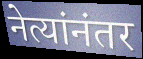
नेत्यांनंतर